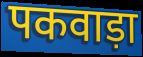
पकवाड़ा